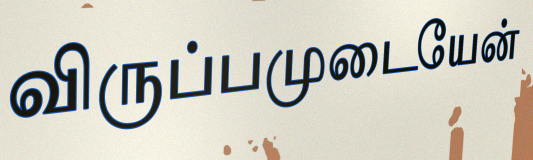
விருப்பமுடையேன்